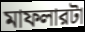
মাফলারটা